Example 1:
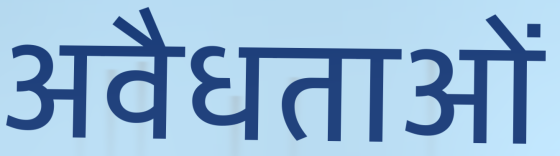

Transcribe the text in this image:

अवैधताओं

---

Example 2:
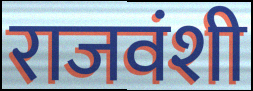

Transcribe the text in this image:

राजवंशी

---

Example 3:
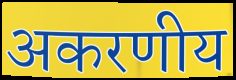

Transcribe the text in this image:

अकरणीय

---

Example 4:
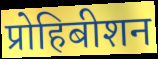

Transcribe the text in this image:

प्रोहिबीशन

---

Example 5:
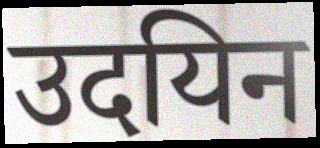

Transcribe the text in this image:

उदयिन